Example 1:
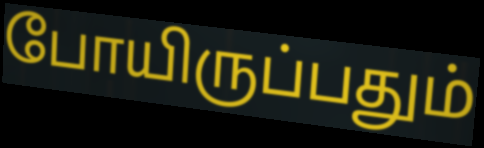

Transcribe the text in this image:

போயிருப்பதும்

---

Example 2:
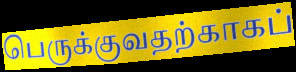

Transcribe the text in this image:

பெருக்குவதற்காகப்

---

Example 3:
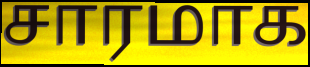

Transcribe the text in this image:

சாரமாக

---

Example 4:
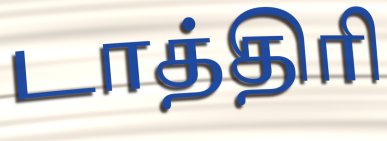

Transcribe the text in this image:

டாத்திரி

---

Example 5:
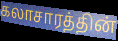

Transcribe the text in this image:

கலாசாரத்தின்